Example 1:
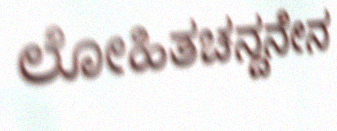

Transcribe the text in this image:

ಲೋಹಿತಚನ್ದನೇನ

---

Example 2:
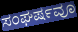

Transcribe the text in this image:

ಸಂಘರ್ಷವೂ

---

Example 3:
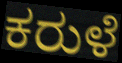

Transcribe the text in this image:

ಕರುಳೆ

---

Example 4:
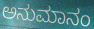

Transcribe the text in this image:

ಅನುಮಾನಂ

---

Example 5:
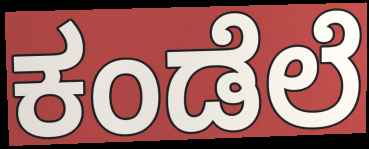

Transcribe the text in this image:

ಕಂಡೆಲೆ